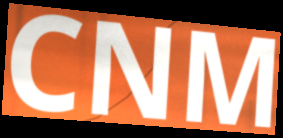
CNM